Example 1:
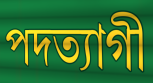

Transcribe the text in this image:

পদত্যাগী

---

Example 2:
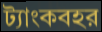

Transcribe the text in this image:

ট্যাংকবহর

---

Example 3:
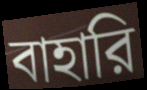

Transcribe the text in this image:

বাহারি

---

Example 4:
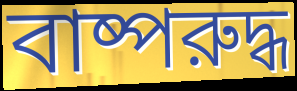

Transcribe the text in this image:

বাষ্পরুদ্ধ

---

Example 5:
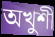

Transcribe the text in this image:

অখুশী